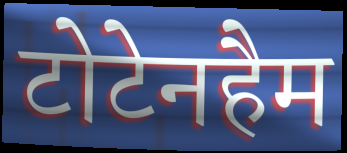
टोटेनहैम